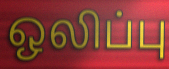
ஒலிப்பு